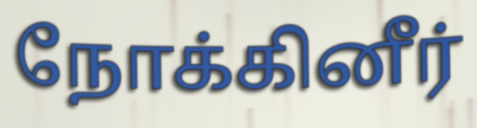
நோக்கினீர்